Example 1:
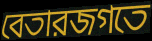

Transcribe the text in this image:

বেতারজগতে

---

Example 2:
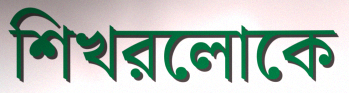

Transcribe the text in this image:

শিখরলোকে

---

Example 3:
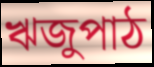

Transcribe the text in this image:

ঋজুপাঠ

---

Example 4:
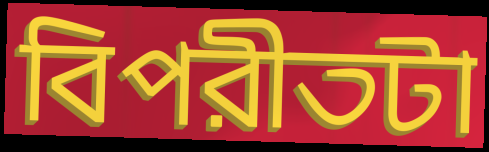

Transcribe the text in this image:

বিপরীতটা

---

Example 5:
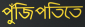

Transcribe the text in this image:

পুঁজিপতিতে